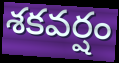
శకవర్షం